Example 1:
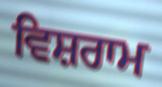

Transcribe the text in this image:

ਵਿਸ਼ਰਾਮ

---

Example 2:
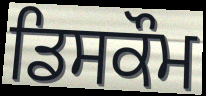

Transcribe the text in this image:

ਡਿਸਕੌਮ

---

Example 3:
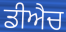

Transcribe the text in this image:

ਡੀਐਚ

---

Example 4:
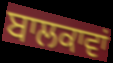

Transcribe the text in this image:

ਬਾਲਕਾਵਾਂ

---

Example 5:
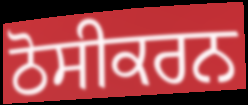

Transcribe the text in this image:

ਠੋਸੀਕਰਨ